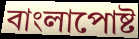
বাংলাপোষ্ট